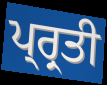
ਪ੍ਰ੍ਰਤੀ